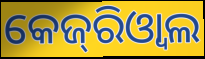
କେଜ୍‌ରିଓ୍ବାଲ